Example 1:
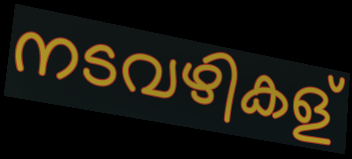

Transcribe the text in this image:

നടവഴികള്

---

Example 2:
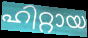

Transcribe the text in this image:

ഹിറ്റായ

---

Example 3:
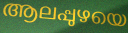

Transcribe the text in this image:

ആലപ്പുഴയെ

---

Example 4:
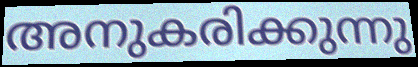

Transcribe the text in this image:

അനുകരിക്കുന്നു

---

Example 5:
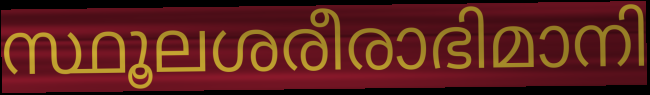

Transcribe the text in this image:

സ്ഥൂലശരീരാഭിമാനി